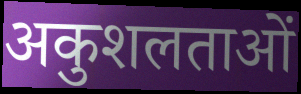
अकुशलताओं